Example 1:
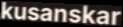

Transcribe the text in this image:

kusanskar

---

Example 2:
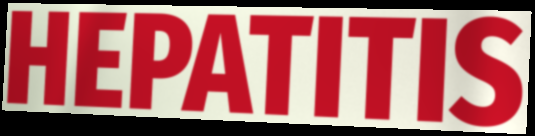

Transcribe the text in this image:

HEPATITIS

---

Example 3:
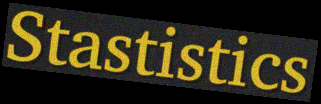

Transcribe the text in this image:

Stastistics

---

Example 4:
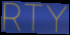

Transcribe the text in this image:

RTY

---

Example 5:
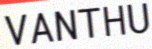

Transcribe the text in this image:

VANTHU